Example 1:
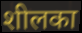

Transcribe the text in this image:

शीलका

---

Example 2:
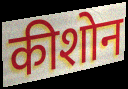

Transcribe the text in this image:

कीशोन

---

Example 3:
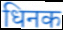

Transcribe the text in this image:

धिनक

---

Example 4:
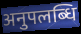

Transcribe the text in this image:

अनुपलब्धि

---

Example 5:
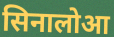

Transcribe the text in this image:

सिनालोआ